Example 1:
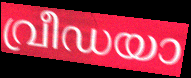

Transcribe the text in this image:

വ്രീഡയാ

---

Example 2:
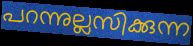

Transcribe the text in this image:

പറന്നുല്ലസിക്കുന്ന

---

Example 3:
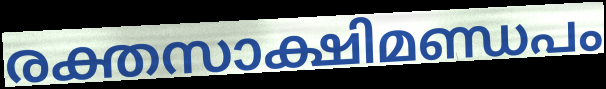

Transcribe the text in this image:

രക്തസാക്ഷിമണ്ഡപം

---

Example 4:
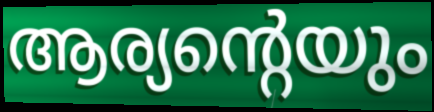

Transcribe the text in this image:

ആര്യന്റെയും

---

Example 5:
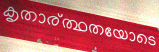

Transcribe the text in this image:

കൃതാര്ത്ഥതയോടെ